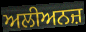
ਅਲੀਅਨਜ਼